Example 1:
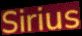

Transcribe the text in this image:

Sirius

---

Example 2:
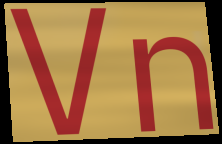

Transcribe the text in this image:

Vn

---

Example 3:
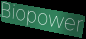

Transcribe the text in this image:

Biopower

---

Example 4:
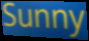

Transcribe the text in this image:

Sunny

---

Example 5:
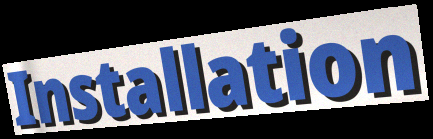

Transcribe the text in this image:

Installation